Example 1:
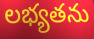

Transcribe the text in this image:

లభ్యతను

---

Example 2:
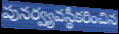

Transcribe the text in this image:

పునర్వ్యవస్థీకరించిన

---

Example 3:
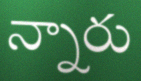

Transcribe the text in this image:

న్నారు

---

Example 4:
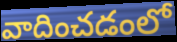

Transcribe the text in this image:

వాదించడంలో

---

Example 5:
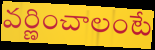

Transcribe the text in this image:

వర్ణించాలంటే